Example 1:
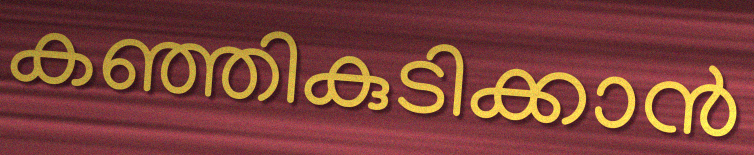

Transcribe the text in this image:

കഞ്ഞികുടിക്കാൻ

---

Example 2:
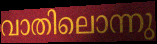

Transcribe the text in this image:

വാതിലൊന്നു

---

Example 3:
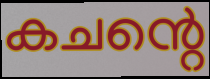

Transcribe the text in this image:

കചന്റെ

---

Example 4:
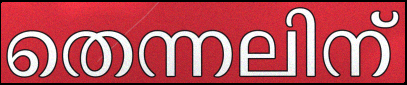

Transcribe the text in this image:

തെന്നലിന്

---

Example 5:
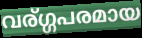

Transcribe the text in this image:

വര്ഗ്ഗപരമായ